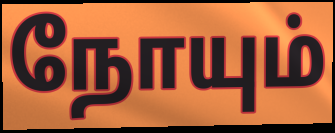
நோயும்